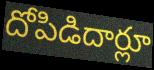
దోపిడిదార్లూ